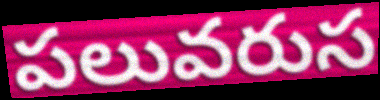
పలువరుస